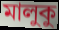
মালুকু